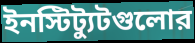
ইনস্টিট্যুটগুলোর